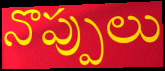
నొప్పులు